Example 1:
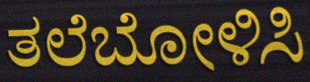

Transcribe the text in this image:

ತಲೆಬೋಳಿಸಿ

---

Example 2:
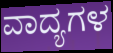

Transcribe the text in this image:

ವಾದ್ಯಗಳ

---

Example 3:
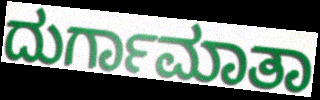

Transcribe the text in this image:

ದುರ್ಗಾಮಾತಾ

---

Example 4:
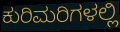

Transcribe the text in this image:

ಕುರಿಮರಿಗಳಲ್ಲಿ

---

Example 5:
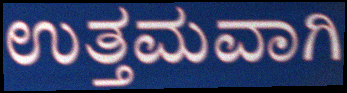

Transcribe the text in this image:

ಉತ್ತಮವಾಗಿ